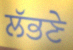
ਲੱਭਣੇ